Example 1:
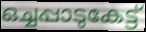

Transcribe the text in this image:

ഒച്ചപ്പാടുകേട്ട്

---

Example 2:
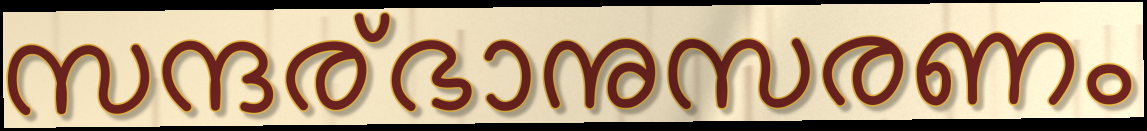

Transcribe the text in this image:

സന്ദര്ഭാനുസരണം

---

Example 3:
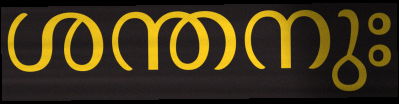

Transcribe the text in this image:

ശന്തനുഃ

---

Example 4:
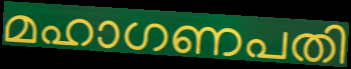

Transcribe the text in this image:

മഹാഗണപതി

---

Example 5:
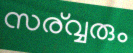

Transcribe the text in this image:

സര്വ്വരും